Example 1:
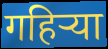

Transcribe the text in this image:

गहिर्‍या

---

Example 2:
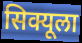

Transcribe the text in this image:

सिक्यूला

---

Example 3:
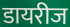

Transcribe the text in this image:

डायरीज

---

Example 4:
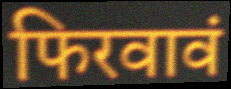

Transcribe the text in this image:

फिरवावं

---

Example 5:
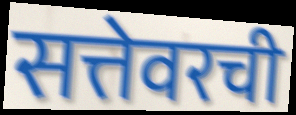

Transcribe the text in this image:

सत्तेवरची